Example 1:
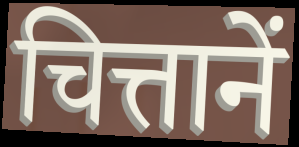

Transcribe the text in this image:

चित्तानें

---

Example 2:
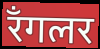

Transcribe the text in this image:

रॅंगलर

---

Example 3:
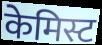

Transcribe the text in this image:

केमिस्ट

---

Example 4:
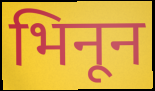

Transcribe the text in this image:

भिनून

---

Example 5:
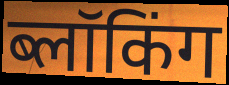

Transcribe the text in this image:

ब्लॉकिंग